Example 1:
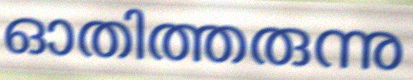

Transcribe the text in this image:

ഓതിത്തരുന്നു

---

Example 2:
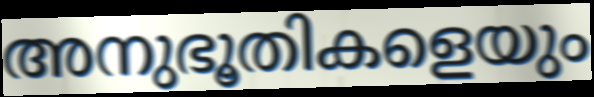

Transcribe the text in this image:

അനുഭൂതികളെയും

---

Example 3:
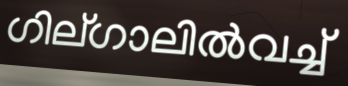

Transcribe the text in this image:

ഗില്ഗാലിൽവച്ച്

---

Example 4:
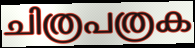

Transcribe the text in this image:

ചിത്രപത്രക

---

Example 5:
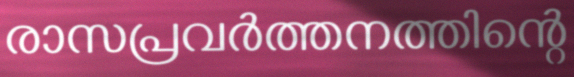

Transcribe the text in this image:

രാസപ്രവർത്തനത്തിന്റെ